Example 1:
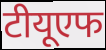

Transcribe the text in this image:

टीयूएफ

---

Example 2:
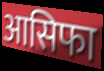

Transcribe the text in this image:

आसिफा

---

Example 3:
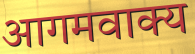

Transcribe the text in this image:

आगमवाक्य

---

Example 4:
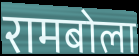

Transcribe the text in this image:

रामबोला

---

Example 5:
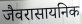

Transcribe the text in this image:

जैवरासायनिक